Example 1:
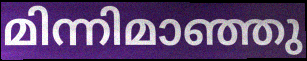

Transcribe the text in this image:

മിന്നിമാഞ്ഞു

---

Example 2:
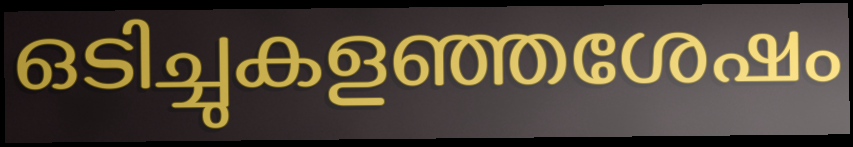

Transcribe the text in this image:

ഒടിച്ചുകളഞ്ഞശേഷം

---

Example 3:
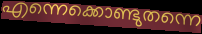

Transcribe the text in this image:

എന്നെക്കൊണ്ടുതന്നെ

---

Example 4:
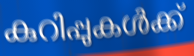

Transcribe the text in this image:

കുറിപ്പുകൾക്ക്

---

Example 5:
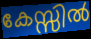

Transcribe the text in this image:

കേസ്സിൽ